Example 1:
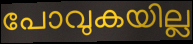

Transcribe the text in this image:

പോവുകയില്ല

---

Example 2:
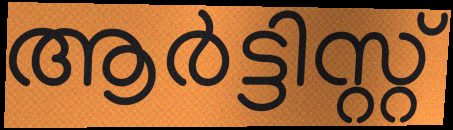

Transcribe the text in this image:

ആർട്ടിസ്റ്റ്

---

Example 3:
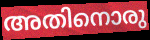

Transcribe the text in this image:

അതിനൊരു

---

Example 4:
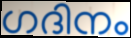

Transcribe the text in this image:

ഗദിനം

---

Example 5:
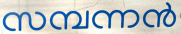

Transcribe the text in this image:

സമ്പന്നൻ